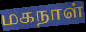
மகநாள்